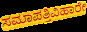
ಸಮಾಪತ್ತಿವಿಹಾರೇ